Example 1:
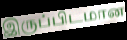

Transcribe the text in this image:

இருப்பிடமான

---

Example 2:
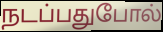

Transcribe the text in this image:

நடப்பதுபோல்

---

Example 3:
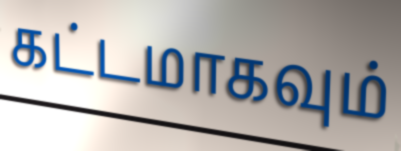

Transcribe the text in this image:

கட்டமாகவும்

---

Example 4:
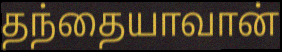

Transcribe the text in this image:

தந்தையாவான்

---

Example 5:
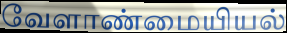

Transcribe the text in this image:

வேளாண்மையியல்